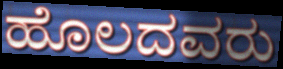
ಹೊಲದವರು